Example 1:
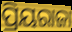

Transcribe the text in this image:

ପ୍ରିୟରାଜା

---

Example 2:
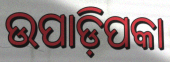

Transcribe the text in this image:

ଉପାଡ଼ିପକା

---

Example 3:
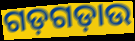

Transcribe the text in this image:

ଗଡ଼ଗଡ଼ାଉ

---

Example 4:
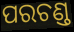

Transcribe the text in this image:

ପରଚଣ୍ଡ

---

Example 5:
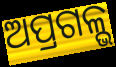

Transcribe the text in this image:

ଅପ୍ରଗଳ୍ଭ